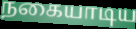
நகையாடிய